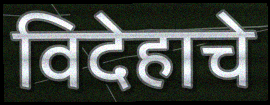
विदेहाचे